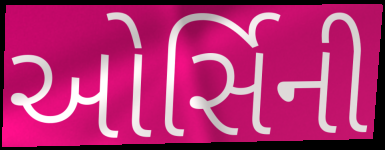
ઓર્સિની